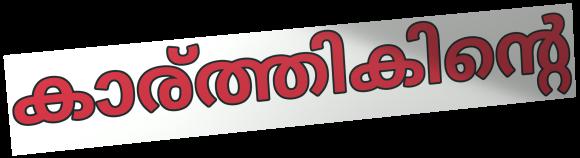
കാര്ത്തികിന്റെ